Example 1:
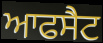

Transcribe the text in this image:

ਆਫਸੈਟ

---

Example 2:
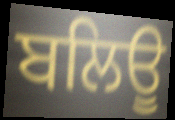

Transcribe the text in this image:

ਬਲਿਊ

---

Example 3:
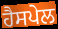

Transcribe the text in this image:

ਹੈਸਪੇਲ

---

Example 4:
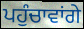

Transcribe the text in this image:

ਪਹੁੰਚਾਵਾਂਗੇ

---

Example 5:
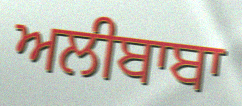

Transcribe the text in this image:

ਅਲੀਬਾਬਾ